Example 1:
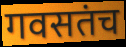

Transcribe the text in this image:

गवसतंच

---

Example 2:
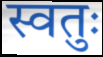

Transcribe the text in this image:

स्वतुः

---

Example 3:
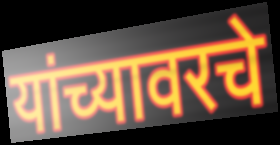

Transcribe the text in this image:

यांच्यावरचे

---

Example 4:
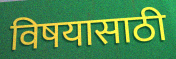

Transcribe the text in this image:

विषयासाठी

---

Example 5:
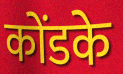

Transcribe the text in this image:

कोंडके